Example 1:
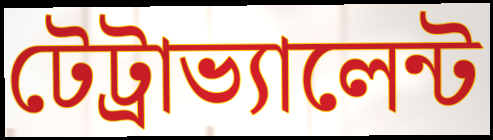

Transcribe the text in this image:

টেট্রাভ্যালেন্ট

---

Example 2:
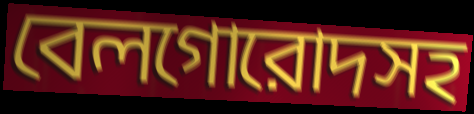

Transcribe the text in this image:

বেলগোরোদসহ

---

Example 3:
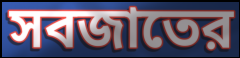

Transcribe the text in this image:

সবজাতের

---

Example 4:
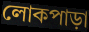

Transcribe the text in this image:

লোকপাড়া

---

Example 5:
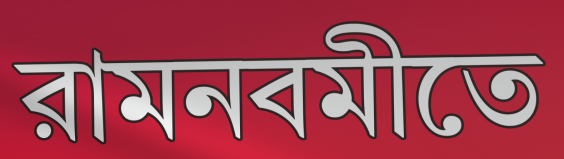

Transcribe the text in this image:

রামনবমীতে